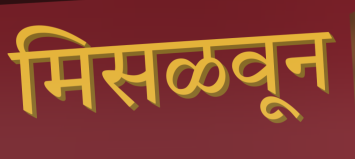
मिसळवून